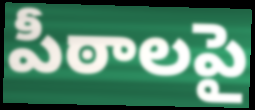
పీఠాలపై